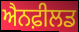
ਐਨਫ਼ੀਲਡ